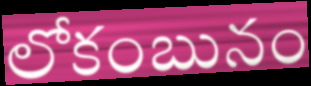
లోకంబునం